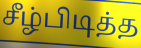
சீழ்பிடித்த